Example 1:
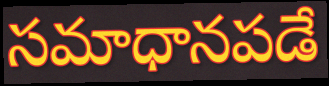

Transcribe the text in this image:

సమాధానపడే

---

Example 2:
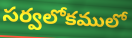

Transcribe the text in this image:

సర్వలోకములో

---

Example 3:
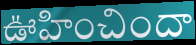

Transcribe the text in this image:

ఊహించిందా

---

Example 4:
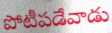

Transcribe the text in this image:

పోటీపడేవాడు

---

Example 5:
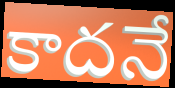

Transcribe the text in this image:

కాదనే